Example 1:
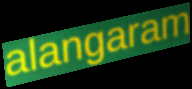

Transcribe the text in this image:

alangaram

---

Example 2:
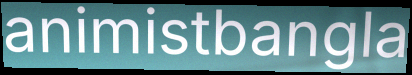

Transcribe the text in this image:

animistbangla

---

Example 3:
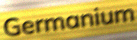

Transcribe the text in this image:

Germanium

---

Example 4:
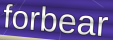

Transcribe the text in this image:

forbear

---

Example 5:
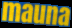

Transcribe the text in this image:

mauna